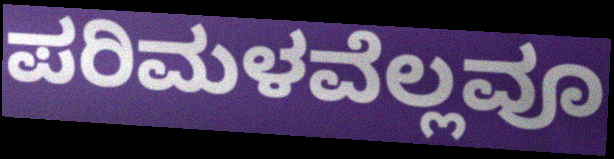
ಪರಿಮಳವೆಲ್ಲವೂ